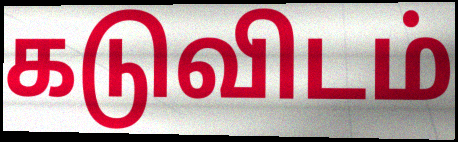
கடுவிடம்